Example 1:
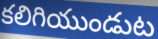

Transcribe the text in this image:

కలిగియుండుట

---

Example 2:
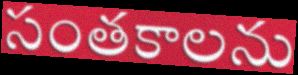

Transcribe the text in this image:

సంతకాలను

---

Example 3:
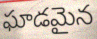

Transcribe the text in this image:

ఘాడమైన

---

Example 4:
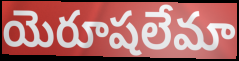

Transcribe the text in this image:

యెరూషలేమా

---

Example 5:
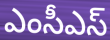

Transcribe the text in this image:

ఎంసీఎస్